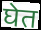
घेत